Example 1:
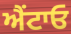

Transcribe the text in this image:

ਐਂਟਾਓ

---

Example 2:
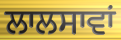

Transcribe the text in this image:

ਲਾਲਸਾਵਾਂ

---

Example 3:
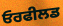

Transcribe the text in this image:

ਓਰਫੀਲਡ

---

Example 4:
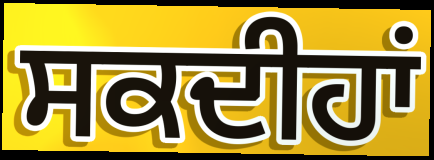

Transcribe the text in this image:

ਸਕਦੀਹਾਂ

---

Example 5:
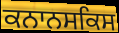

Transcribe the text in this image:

ਕਨਾਨਸਕਿਸ